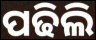
ପଢିଲି